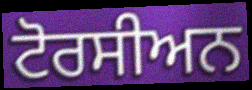
ਟੋਰਸੀਅਨ